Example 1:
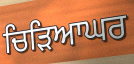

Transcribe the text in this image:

ਚਿੜਿਆਘਰ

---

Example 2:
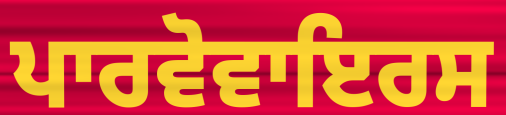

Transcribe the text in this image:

ਪਾਰਵੋਵਾਇਰਸ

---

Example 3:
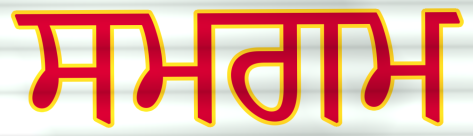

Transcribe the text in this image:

ਸਮਗਮ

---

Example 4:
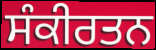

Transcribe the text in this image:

ਸੰਕੀਰਤਨ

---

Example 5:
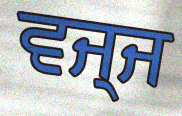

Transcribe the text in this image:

ਵਜ੍ਜ